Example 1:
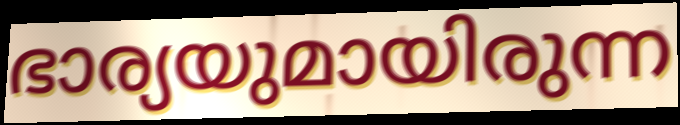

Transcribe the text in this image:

ഭാര്യയുമായിരുന്ന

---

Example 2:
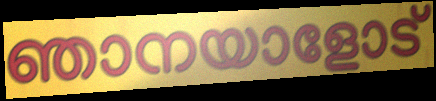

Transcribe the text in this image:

ഞാനയാളോട്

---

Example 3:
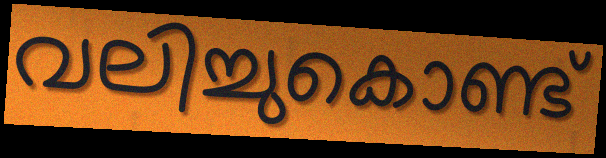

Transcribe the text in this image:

വലിച്ചുകൊണ്ട്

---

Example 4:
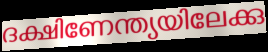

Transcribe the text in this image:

ദക്ഷിണേന്ത്യയിലേക്കു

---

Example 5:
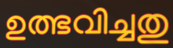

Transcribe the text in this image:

ഉത്ഭവിച്ചതു